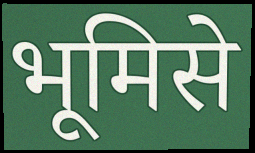
भूमिसे